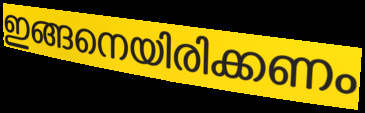
ഇങ്ങനെയിരിക്കണം